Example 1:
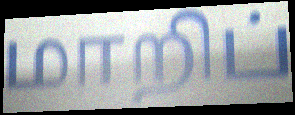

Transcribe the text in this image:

மாறிப்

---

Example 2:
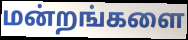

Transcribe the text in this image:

மன்றங்களை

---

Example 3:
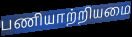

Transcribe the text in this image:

பணியாற்றியமை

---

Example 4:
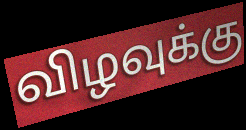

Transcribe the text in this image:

விழவுக்கு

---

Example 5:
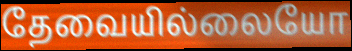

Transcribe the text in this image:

தேவையில்லையோ